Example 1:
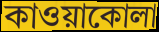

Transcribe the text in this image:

কাওয়াকোলা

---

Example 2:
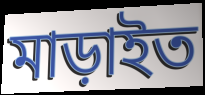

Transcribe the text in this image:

মাড়াইত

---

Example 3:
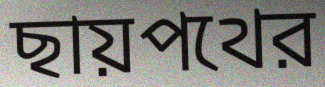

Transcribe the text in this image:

ছায়পথের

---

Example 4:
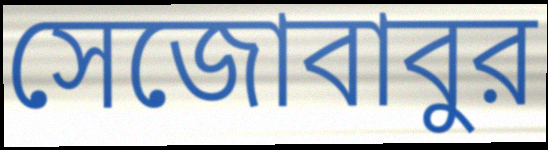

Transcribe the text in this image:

সেজোবাবুর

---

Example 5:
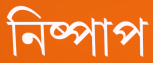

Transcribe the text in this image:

নিষ্পাপ